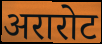
अरारोट